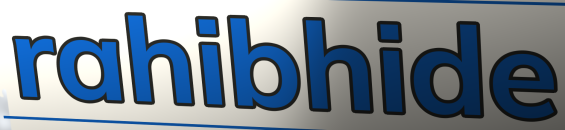
rahibhide